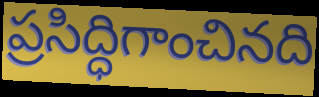
ప్రసిద్ధిగాంచినది